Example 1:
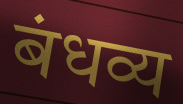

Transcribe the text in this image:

बंधव्य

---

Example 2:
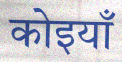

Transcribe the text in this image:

कोइयाँ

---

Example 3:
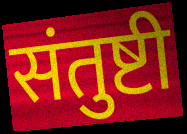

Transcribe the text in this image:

संतुष्टी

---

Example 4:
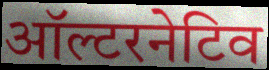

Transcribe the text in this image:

ऑल्टरनेटिव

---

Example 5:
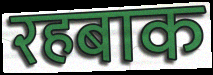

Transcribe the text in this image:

रहबाक